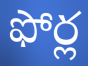
ఫోర్ల